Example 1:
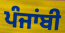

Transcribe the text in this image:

ਪੰਜਾਂਬੀ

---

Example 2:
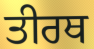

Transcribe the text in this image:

ਤੀਰਥ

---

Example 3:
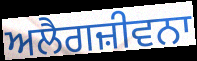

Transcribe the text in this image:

ਅਲੈਗਜ਼ੀਵਨਾ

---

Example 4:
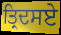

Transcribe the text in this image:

ਤ੍ਰਿਦਸਏ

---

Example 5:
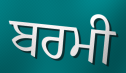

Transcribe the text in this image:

ਬਰਮੀ